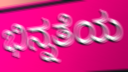
ಭಿನ್ನತೆಯ